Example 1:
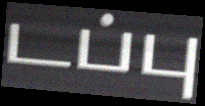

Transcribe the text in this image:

டப்பு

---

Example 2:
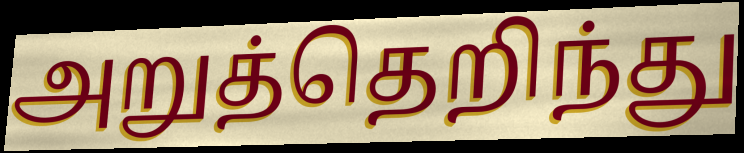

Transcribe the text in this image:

அறுத்தெறிந்து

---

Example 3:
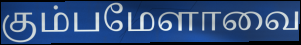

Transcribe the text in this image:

கும்பமேளாவை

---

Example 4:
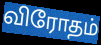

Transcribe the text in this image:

விரோதம்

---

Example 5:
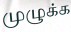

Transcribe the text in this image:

முழுக்க